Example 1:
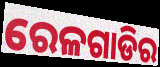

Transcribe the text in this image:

ରେଳଗାଡିର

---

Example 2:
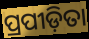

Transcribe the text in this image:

ପ୍ରପୀଡ଼ିତା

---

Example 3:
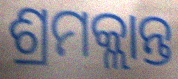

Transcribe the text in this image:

ଶ୍ରମକ୍ଲାନ୍ତ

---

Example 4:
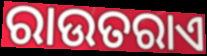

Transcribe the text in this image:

ରାଉତରାଏ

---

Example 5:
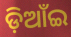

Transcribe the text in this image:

ଡ଼ିଆଁଇ